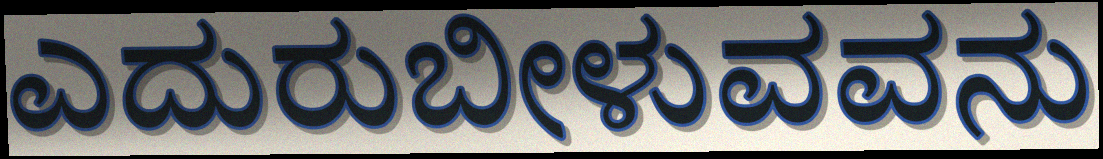
ಎದುರುಬೀಳುವವನು